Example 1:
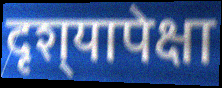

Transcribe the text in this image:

दृश्यापेक्षा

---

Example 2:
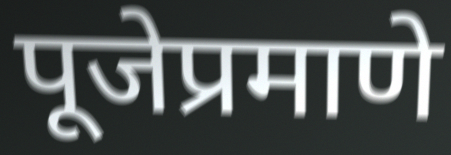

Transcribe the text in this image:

पूजेप्रमाणे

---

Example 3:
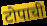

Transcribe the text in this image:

टोपाची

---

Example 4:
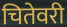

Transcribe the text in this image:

चितेवरी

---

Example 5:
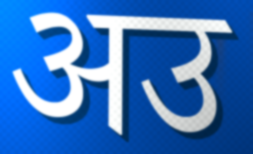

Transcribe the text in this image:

अउ